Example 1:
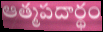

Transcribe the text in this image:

ఆత్మపదార్థం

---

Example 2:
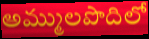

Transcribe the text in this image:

అమ్ములపొదిలో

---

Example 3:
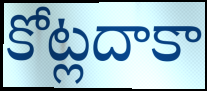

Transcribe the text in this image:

కోట్లదాకా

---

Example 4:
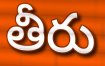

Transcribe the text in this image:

తీరు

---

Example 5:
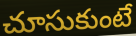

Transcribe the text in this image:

చూసుకుంటే